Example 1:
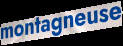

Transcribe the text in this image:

montagneuse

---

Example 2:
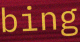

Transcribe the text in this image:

bing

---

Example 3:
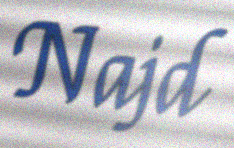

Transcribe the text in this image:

Najd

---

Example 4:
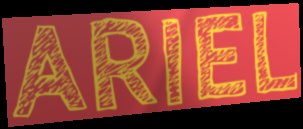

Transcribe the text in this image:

ARIEL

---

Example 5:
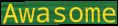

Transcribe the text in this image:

Awasome